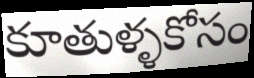
కూతుళ్ళకోసం